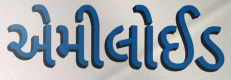
એમીલોઈડ